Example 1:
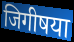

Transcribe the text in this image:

जिगीषया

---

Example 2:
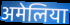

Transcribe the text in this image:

अमेलिया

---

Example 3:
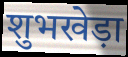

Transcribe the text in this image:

शुभखेड़ा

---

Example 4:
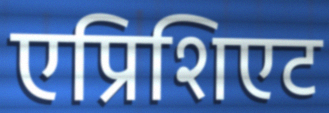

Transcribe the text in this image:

एप्रिशिएट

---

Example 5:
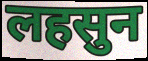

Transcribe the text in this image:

लहसुन